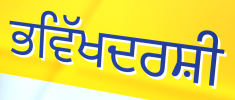
ਭਵਿੱਖਦਰਸ਼ੀ